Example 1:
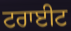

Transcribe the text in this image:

ਟਰਾਈਟ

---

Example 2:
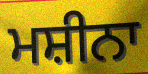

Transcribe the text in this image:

ਮਸ਼ੀਨਾ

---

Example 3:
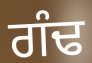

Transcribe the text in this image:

ਗੰਢ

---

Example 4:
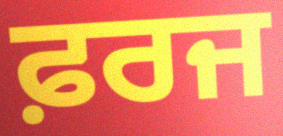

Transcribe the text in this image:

ਫ਼ਰਜ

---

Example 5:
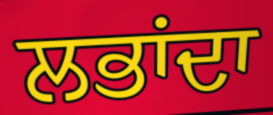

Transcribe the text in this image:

ਲਭਾਂਦਾ